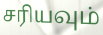
சரியவும்